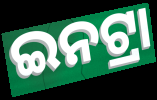
ଇନଟ୍ରା